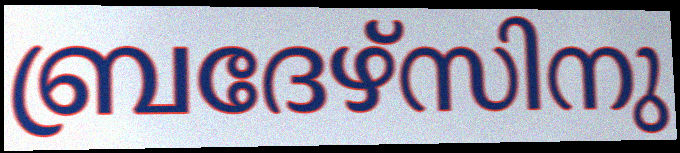
ബ്രദേഴ്സിനു